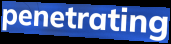
penetrating